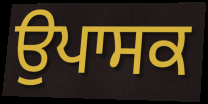
ਉਪਾਸਕ